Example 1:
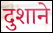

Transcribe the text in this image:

दुशाने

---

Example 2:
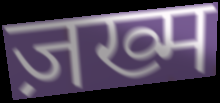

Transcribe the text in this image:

ज़ख्म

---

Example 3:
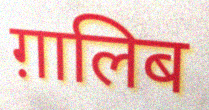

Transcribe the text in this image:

ग़ालिब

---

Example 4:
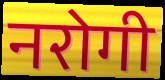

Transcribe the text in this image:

नरोगी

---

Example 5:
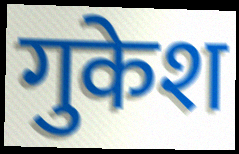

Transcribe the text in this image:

गुकेश